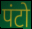
पंटो